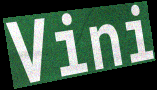
Vini